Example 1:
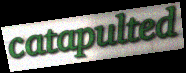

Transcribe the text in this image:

catapulted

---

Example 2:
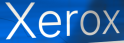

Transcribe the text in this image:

Xerox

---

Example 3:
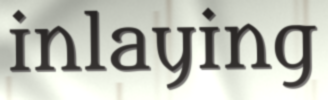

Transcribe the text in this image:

inlaying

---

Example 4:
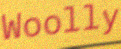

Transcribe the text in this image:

Woolly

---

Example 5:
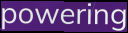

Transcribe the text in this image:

powering